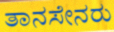
ತಾನಸೇನರು